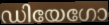
ഡിയേഗോ